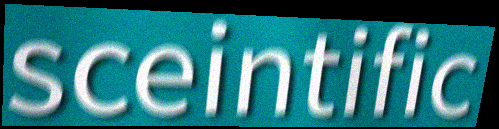
sceintific